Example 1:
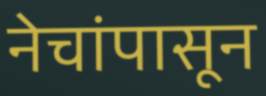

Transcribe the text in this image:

नेचांपासून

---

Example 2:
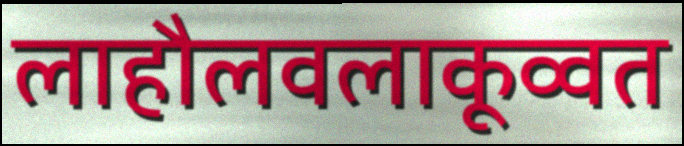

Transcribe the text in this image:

लाहौलवलाकूव्वत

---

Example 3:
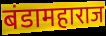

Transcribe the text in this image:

बंडामहाराज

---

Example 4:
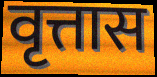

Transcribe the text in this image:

वृत्तास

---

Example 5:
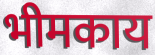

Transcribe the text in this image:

भीमकाय